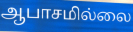
ஆபாசமில்லை